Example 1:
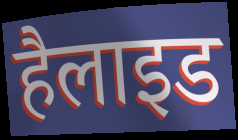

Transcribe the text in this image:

हैलाइड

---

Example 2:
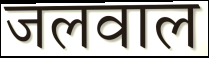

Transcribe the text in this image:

जलवाल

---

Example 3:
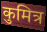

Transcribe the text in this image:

कुमित्र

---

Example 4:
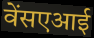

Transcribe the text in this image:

वेंसएआई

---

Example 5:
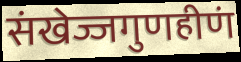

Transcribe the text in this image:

संखेज्जगुणहीणं